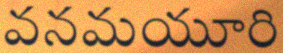
వనమయూరి